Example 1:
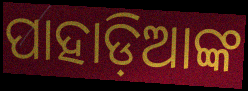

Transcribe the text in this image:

ପାହାଡ଼ିଆଙ୍କ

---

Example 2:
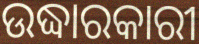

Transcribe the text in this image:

ଉଦ୍ଧାରକାରୀ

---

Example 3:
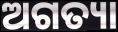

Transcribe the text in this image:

ଅଗତ୍ୟା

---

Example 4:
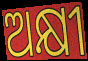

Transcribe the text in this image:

ଅକ୍ଷୀ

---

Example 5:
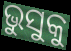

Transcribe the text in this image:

ଭୁସୁକୁ